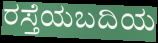
ರಸ್ತೆಯಬದಿಯ